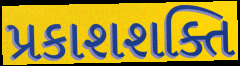
પ્રકાશશક્તિ